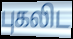
புகலிட